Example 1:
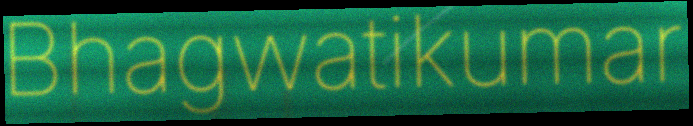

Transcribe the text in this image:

Bhagwatikumar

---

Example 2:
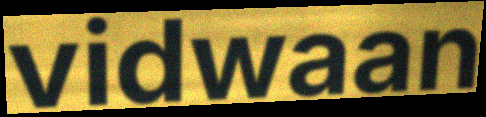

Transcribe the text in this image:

vidwaan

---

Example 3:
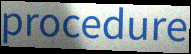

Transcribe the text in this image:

procedure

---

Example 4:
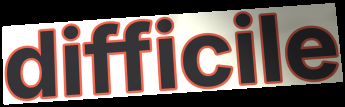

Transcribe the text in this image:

difficile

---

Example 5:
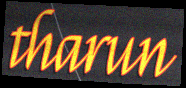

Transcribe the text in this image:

tharun